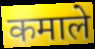
कमाले